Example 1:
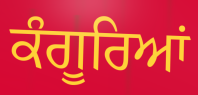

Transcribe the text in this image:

ਕੰਗੂਰਿਆਂ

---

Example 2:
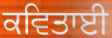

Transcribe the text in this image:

ਕਵਿਤਾਈ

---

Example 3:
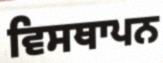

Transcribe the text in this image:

ਵਿਸਥਾਪਨ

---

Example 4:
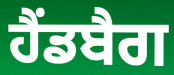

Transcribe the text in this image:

ਹੈਂਡਬੈਗ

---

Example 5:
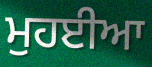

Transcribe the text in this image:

ਮੁਹਈਆ